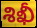
శిఖీ